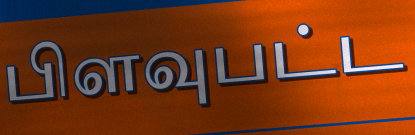
பிளவுபட்ட